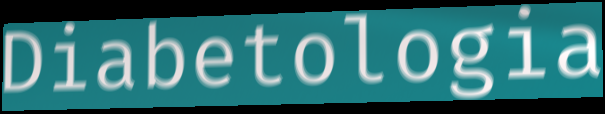
Diabetologia